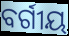
ବର୍ଗୀୟ